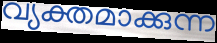
വ്യക്തമാക്കുന്ന